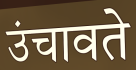
उंचावते